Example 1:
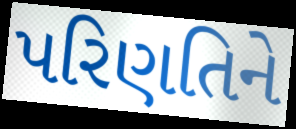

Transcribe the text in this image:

પરિણતિને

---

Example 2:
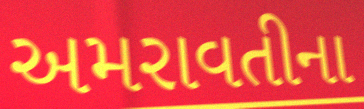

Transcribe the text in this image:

અમરાવતીના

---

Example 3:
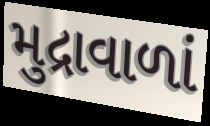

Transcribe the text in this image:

મુદ્રાવાળાં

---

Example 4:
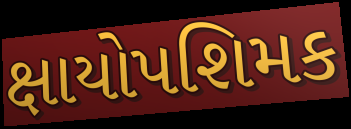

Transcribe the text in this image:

ક્ષાયોપશિમક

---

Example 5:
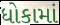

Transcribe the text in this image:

ધોકામાં